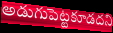
అడుగుపెట్టకూడదని